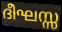
ദീഘസ്സ